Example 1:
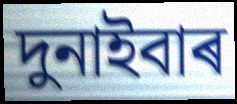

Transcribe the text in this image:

দুনাইবাৰ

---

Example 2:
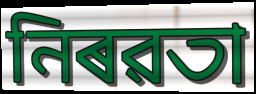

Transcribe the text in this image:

নিৰৱতা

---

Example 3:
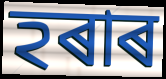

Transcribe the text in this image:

হৰাৰ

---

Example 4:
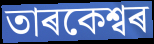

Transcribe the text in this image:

তাৰকেশ্বৰ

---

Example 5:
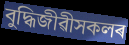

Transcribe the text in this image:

বুদ্ধিজীৱীসকলৰ